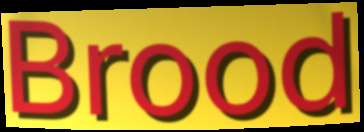
Brood